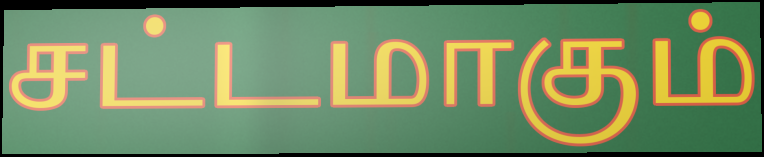
சட்டமாகும்